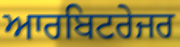
ਆਰਬਿਟਰੇਜਰ